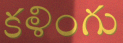
కళింగు